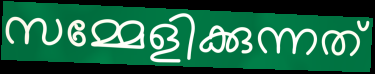
സമ്മേളിക്കുന്നത്